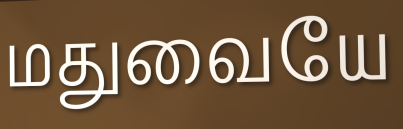
மதுவையே